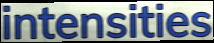
intensities